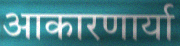
आकारणार्या